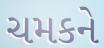
ચમકને